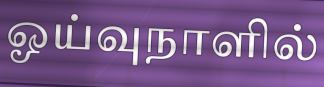
ஓய்வுநாளில்